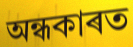
অন্ধকাৰত